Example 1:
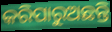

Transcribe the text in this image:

କରିପାରୁଅଛନ୍ତି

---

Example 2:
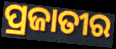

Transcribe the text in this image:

ପ୍ରଜାତୀର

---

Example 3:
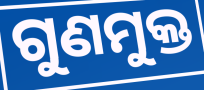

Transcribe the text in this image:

ଗୁଣମୁକ୍ତ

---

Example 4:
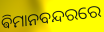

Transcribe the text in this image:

ଵିମାନବନ୍ଦରରେ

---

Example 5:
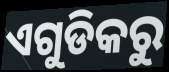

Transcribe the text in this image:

ଏଗୁଡିକରୁ